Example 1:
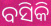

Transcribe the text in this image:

ବସିକି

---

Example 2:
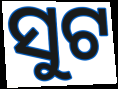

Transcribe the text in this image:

ସୁଟ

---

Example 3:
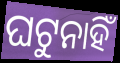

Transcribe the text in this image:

ଘଟୁନାହିଁ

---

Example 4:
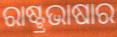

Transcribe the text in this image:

ରାଷ୍ଟ୍ରଭାଷାର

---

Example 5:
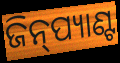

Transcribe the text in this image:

ଜିନ୍‍ପ୍ୟାଣ୍ଟ